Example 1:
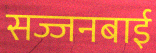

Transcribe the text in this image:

सज्जनबाई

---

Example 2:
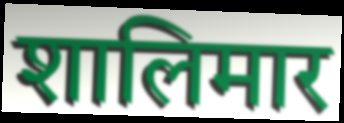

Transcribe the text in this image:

शालिमार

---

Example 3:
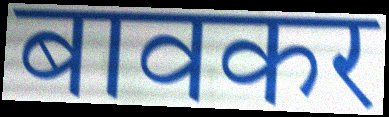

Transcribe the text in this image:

बावकर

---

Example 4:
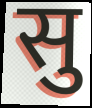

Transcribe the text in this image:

सु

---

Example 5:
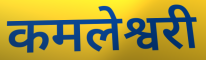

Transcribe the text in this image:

कमलेश्वरी